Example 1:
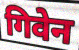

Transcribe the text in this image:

गिवेन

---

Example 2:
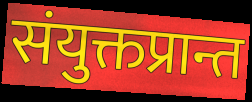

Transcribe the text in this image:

संयुक्तप्रान्त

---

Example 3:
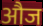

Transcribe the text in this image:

औज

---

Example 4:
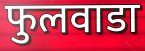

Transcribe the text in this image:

फुलवाडा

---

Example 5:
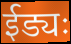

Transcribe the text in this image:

ईड्यः